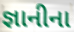
જ્ઞાનીના